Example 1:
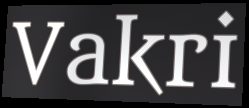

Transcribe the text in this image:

Vakri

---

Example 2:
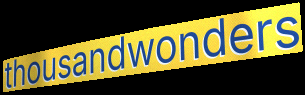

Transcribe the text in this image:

thousandwonders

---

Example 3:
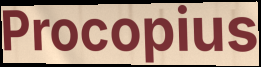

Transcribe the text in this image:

Procopius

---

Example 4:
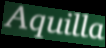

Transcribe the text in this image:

Aquilla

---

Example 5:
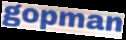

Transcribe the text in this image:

gopman